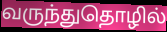
வருந்துதொழில்